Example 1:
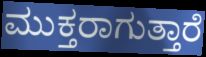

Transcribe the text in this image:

ಮುಕ್ತರಾಗುತ್ತಾರೆ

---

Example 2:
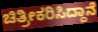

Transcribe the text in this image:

ಚಿತ್ರೀಕರಿಸಿದ್ದಾನೆ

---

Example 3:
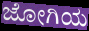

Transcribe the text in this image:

ಜೋಗಿಯ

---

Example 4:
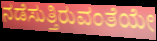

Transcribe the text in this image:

ನಡೆಸುತ್ತಿರುವಂತೆಯೇ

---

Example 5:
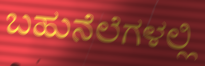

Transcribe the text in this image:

ಬಹುನೆಲೆಗಳಲ್ಲಿ